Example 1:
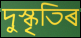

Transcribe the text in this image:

দুস্কৃতিৰ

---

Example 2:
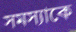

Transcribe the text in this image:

সমস্যাকে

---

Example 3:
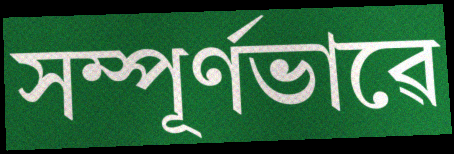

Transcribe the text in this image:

সম্পূৰ্ণভাৱে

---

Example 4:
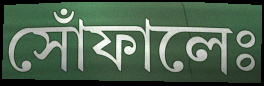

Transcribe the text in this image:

সোঁফালেঃ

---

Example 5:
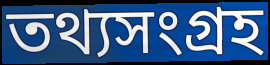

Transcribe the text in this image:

তথ্যসংগ্ৰহ